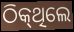
ଠିକ୍‌ଥିଲେ